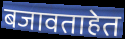
बजावताहेत